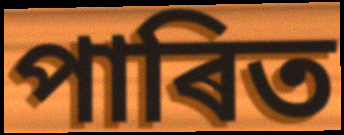
পাৰিত